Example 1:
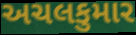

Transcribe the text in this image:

અચલકુમાર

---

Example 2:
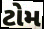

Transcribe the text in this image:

ટોમ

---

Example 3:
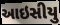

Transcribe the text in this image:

આઇસીયુ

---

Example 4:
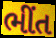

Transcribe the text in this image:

ભીંત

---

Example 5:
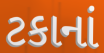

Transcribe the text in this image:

ટકાનાં